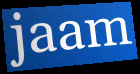
jaam